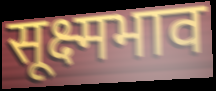
सूक्ष्मभाव